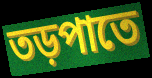
তড়পাতে